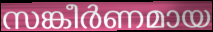
സങ്കീർണമായ